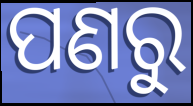
ପଣରୁ